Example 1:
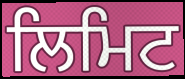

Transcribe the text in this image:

ਲਿਮਿਟ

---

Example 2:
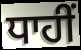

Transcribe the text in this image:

ਧਾਹੀਂ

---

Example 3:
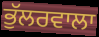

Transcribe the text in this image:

ਭੁੱਲਰਵਾਲਾ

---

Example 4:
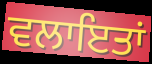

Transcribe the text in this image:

ਵਲਾਇਤਾਂ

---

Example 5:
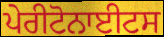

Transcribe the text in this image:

ਪੇਰੀਟੋਨਾਈਟਸ